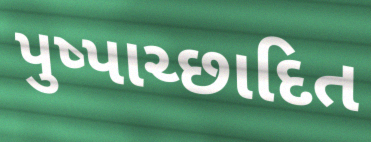
પુષ્પાચ્છાદિત